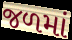
જળમાં